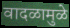
वादळामुळे